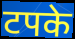
टपके